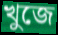
খুজে